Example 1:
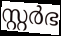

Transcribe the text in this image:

സ്റ്റർഭ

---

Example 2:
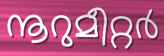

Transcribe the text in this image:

നൂറുമീറ്റർ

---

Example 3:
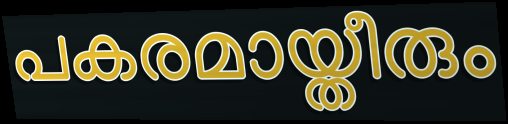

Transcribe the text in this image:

പകരമായ്തീരും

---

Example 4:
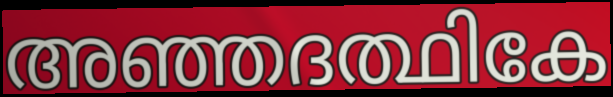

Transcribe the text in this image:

അഞ്ഞദത്ഥികേ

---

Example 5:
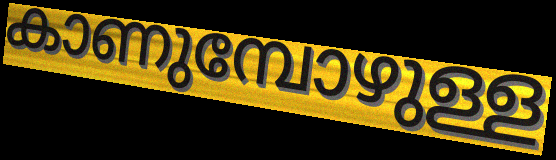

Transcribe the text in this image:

കാണുമ്പോഴുള്ള